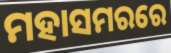
ମହାସମରରେ